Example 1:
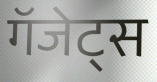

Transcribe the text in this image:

गॅजेट्स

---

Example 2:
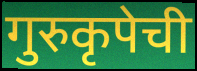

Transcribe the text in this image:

गुरुकृपेची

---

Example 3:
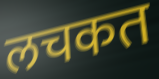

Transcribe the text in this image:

लचकत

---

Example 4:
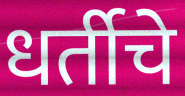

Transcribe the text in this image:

धर्तीचे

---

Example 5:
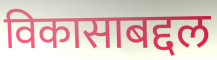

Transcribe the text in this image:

विकासाबद्दल